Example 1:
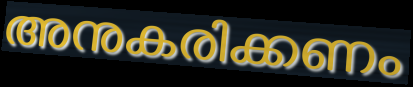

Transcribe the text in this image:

അനുകരിക്കണം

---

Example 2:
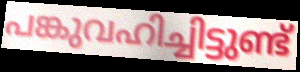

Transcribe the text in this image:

പങ്കുവഹിച്ചിട്ടുണ്ട്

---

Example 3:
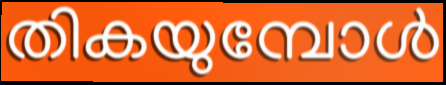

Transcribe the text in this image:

തികയുമ്പോൾ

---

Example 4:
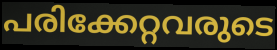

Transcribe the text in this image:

പരിക്കേറ്റവരുടെ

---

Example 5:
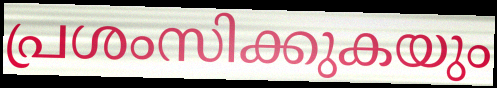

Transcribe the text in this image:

പ്രശംസിക്കുകയും